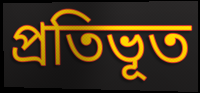
প্রতিভূত